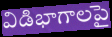
విడిభాగాలపై